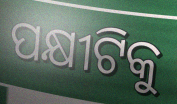
ପକ୍ଷୀଟିକୁ